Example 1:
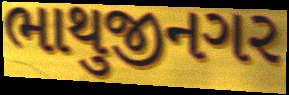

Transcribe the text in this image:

ભાથુજીનગર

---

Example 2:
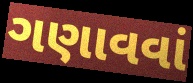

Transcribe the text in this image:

ગણાવવાં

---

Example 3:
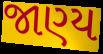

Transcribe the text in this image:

જાણ્ય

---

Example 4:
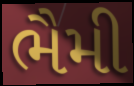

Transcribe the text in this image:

ભૈમી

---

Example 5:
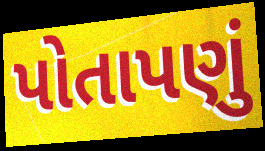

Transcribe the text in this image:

પોતાપણું